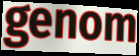
genom